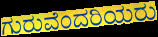
ಗುರುವೆಂದರಿಯರು